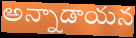
అన్నాడాయన